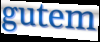
gutem